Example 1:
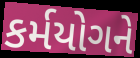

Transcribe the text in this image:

કર્મયોગને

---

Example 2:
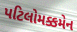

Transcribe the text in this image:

પટિલોમક્કમેન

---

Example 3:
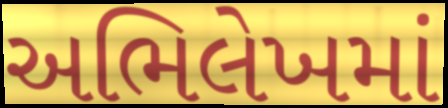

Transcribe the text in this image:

અભિલેખમાં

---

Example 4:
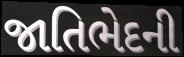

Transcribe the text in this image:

જાતિભેદની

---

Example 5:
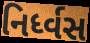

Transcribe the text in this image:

નિર્ધ્વસ